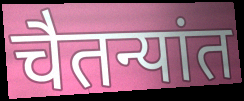
चैतन्यांत